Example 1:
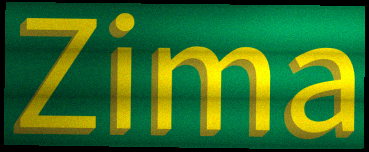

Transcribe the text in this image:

Zima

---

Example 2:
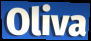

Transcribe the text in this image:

Oliva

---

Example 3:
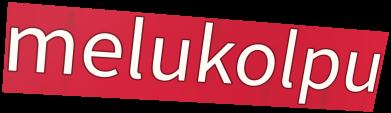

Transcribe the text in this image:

melukolpu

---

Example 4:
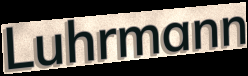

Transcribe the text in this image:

Luhrmann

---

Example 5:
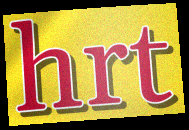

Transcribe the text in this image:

hrt